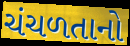
ચંચળતાનો